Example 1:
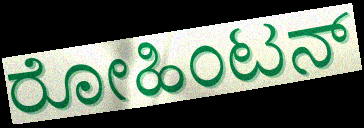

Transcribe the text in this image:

ರೋಹಿಂಟನ್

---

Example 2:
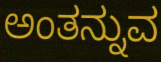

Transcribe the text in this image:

ಅಂತನ್ನುವ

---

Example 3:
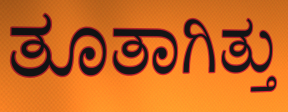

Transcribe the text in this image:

ತೂತಾಗಿತ್ತು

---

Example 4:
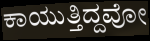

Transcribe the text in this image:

ಕಾಯುತ್ತಿದ್ದವೋ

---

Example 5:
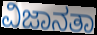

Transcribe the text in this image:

ವಿಜಾನತಾ